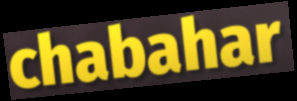
chabahar